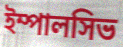
ইম্পালসিভ